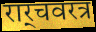
रार्चवरत्र